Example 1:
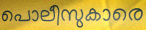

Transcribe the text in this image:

പൊലീസുകാരെ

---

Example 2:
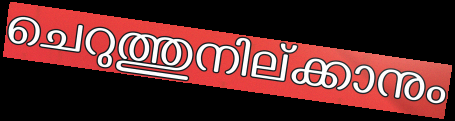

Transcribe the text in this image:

ചെറുത്തുനില്ക്കാനും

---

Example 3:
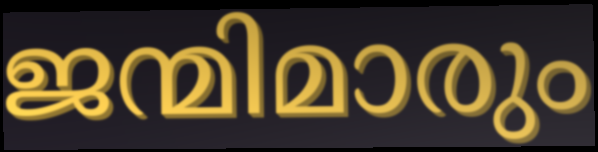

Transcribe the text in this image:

ജന്മിമാരും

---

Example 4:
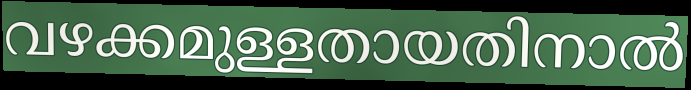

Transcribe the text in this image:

വഴക്കമുള്ളതായതിനാൽ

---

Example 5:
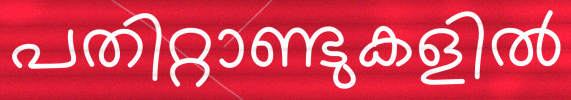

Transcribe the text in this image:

പതിറ്റാണ്ടുകളിൽ